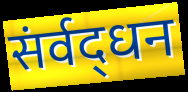
संर्वद्धन